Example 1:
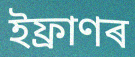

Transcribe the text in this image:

ইফ্ৰাণৰ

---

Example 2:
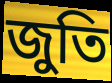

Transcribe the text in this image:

জুতি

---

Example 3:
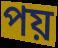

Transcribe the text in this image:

পয়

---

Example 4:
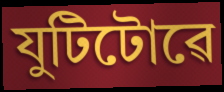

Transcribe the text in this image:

যুটিটোৱে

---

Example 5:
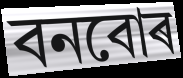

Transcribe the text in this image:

বনবোৰ